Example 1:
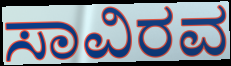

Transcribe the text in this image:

ಸಾವಿರವ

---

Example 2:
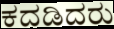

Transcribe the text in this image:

ಕದಡಿದರು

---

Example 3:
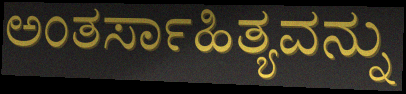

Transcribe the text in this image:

ಅಂತರ್ಸಾಹಿತ್ಯವನ್ನು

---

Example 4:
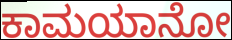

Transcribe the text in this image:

ಕಾಮಯಾನೋ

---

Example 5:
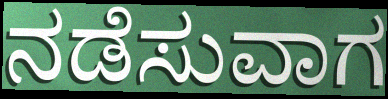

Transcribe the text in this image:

ನಡೆಸುವಾಗ